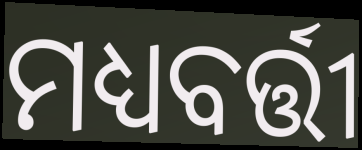
ମଧ୍ୟବର୍ତ୍ତୀ